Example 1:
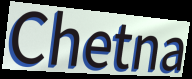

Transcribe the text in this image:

Chetna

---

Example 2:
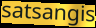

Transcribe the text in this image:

satsangis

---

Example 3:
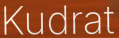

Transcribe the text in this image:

Kudrat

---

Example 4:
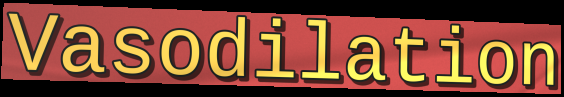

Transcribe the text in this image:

Vasodilation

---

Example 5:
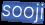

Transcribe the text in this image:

sooji